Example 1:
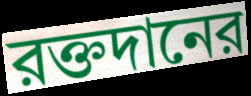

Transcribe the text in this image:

রক্তদানের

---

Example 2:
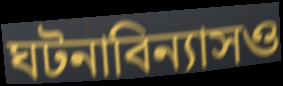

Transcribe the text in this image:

ঘটনাবিন্যাসও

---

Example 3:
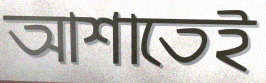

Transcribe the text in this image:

আশাতেই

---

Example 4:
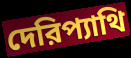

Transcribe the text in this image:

দেরিপ্যাথি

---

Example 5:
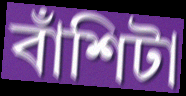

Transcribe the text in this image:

বাঁশিটা